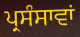
ਪ੍ਰਸੰਸਾਵਾਂ